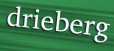
drieberg